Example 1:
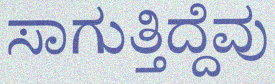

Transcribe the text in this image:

ಸಾಗುತ್ತಿದ್ದೆವು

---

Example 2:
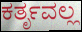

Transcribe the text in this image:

ಕರ್ತೃವಲ್ಲ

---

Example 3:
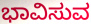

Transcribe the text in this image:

ಭಾವಿಸುವ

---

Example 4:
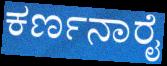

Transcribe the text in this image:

ಕರ್ಣನಾರೈ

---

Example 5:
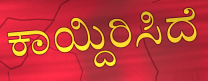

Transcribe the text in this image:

ಕಾಯ್ದಿರಿಸಿದೆ